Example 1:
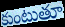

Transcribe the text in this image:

కుంటుతూ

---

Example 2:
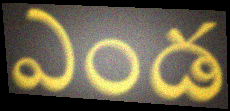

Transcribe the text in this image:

ఎండ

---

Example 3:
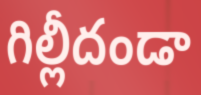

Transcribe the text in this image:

గిల్లీదండా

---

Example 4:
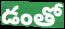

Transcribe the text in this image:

డంతో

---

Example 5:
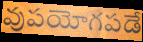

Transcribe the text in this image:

వుపయోగపడే